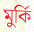
মুর্কি